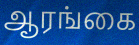
ஆரங்கை